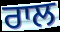
ਰਾਲ